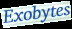
Exobytes